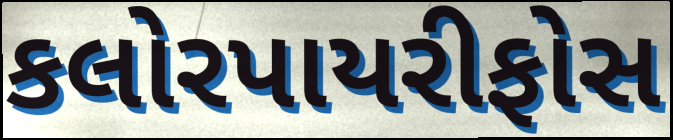
કલોરપાયરીફોસ